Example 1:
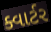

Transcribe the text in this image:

ક્વાર્ટર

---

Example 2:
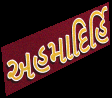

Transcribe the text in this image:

અહમાદિર્હિ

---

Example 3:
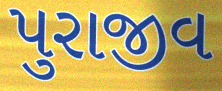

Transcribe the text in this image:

પુરાજીવ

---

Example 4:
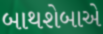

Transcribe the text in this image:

બાથશેબાએ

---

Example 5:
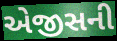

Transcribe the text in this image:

એજીસની